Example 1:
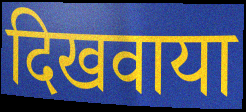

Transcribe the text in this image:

दिखवाया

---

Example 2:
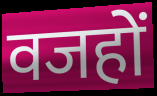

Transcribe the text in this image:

वजहों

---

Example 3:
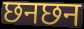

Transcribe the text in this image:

छनछन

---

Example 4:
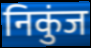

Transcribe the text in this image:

निकुंज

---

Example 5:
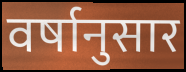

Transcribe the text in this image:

वर्षानुसार